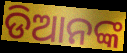
ଡିଆନଙ୍କ